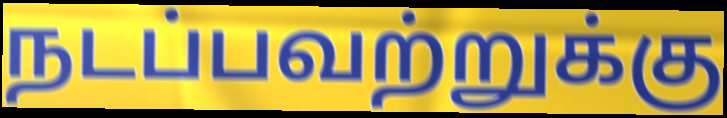
நடப்பவற்றுக்கு